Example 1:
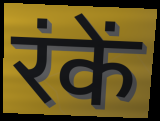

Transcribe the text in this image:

रंकें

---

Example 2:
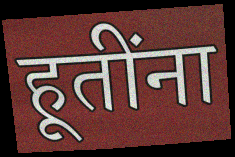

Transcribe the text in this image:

हूतींना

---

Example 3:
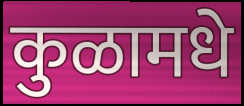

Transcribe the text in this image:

कुळामधे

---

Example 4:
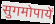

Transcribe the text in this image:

सुगमोपायें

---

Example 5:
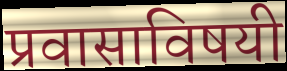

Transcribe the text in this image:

प्रवासाविषयी